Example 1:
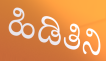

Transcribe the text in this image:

ಹಿಡಿತಿನಿ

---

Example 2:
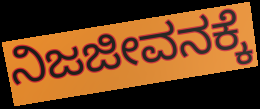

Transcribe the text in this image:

ನಿಜಜೀವನಕ್ಕೆ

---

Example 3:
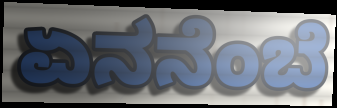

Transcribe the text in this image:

ಏನನೆಂಬೆ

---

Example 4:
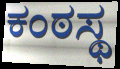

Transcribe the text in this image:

ಕಂಠಸ್ಥ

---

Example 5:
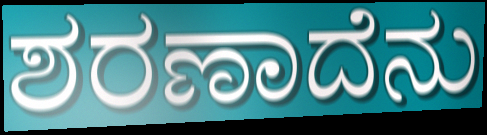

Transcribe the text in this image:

ಶರಣಾದೆನು